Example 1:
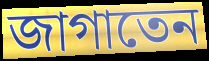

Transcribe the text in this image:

জাগাতেন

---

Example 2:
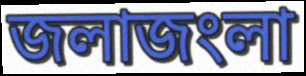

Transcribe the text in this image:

জলাজংলা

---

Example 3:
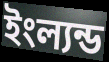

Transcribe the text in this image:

ইংল্যন্ড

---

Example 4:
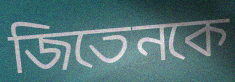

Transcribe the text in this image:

জিতেনকে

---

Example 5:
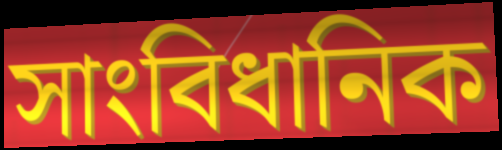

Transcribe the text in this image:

সাংবিধানিক